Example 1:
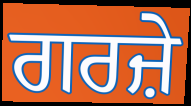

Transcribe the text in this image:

ਗਰਜ਼ੇ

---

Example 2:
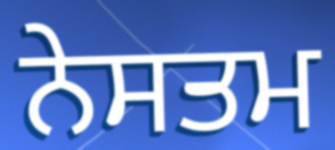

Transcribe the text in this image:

ਨੇਸਤਮ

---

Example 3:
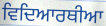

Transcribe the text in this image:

ਵਿਦਿਆਰਥੀਆ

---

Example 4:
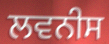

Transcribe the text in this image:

ਲਵਨੀਸ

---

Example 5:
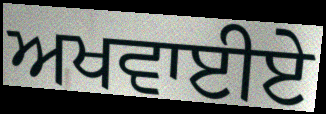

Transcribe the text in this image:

ਅਖਵਾਈਏ